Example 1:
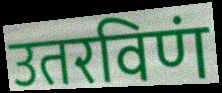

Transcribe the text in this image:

उतरविणं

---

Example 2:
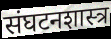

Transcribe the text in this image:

संघटनशास्त्र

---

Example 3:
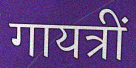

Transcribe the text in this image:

गायत्रीं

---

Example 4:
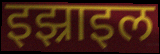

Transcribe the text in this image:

इझ्राइल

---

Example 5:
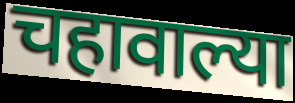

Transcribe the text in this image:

चहावाल्या